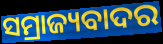
ସମ୍ରାଜ୍ୟବାଦର